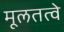
मूलतत्वे